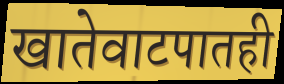
खातेवाटपातही